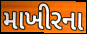
માખીરના